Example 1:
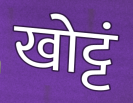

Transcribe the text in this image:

खोट्टं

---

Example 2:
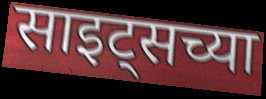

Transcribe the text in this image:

साइट्सच्या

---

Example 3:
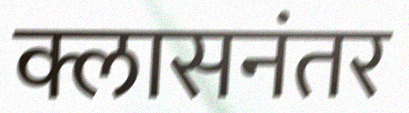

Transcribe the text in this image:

क्लासनंतर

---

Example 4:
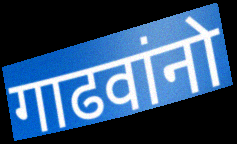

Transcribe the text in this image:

गाढवांनो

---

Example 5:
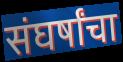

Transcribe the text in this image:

संघर्षांचा